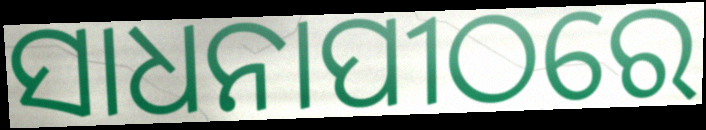
ସାଧନାପୀଠରେ